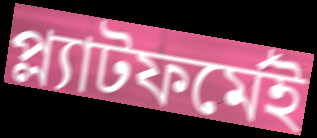
প্ল্যাটফর্মেই